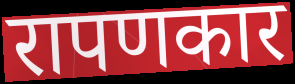
रापणकार